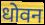
धोवन